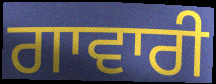
ਗਾਵਾਰੀ